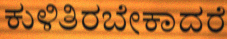
ಕುಳಿತಿರಬೇಕಾದರೆ